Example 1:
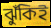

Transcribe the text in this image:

ঝুঁকিই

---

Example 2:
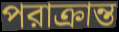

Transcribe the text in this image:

পরাক্রান্ত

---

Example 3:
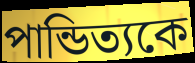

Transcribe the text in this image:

পান্ডিত্যকে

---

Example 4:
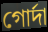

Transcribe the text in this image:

গোর্দা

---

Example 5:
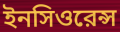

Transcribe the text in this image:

ইনসিওরেন্স